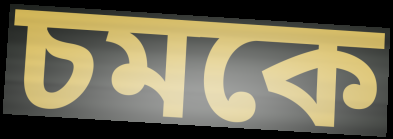
চমকে